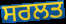
ਸਰਲਤ